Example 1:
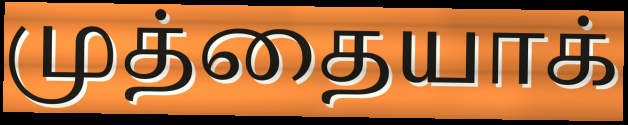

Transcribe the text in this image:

முத்தையாக்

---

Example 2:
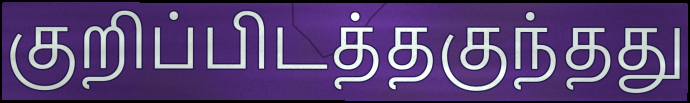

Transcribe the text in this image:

குறிப்பிடத்தகுந்தது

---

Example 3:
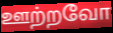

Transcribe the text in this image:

ஊற்றவோ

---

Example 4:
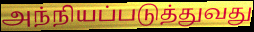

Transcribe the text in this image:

அந்நியப்படுத்துவது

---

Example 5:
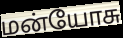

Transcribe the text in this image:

மன்யோசு